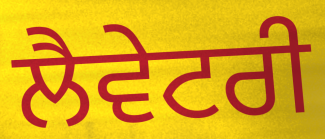
ਲੈਵੇਟਰੀ